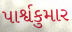
પાર્શ્વકુમાર